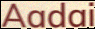
Aadai